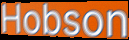
Hobson